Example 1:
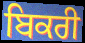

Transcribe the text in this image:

ਬਿਕਰੀ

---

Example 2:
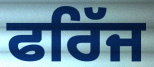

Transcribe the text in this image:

ਫਰਿੱਜ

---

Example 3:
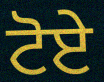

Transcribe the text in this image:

ਟੋਏ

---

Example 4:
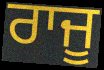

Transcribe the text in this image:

ਰਾਜੂ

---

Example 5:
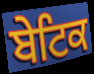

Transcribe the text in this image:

ਬੇਟਿਕ